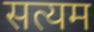
सत्यम